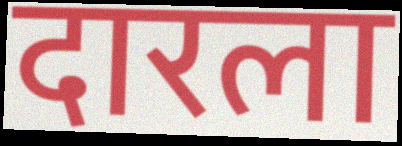
दारला